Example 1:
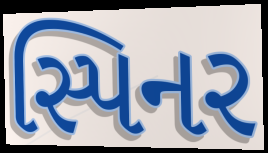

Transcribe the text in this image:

સ્પિનર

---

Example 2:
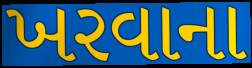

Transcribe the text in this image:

ખરવાના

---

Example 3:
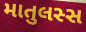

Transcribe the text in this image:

માતુલસ્સ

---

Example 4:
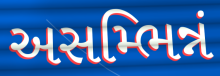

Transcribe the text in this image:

અસમ્ભિન્નં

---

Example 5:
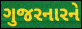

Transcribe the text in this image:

ગુજરનારને